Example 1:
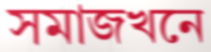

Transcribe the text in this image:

সমাজখনে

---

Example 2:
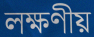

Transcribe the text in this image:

লক্ষণীয়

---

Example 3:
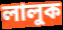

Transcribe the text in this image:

লালুক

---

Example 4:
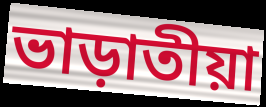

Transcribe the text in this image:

ভাড়াতীয়া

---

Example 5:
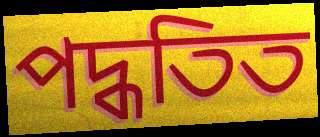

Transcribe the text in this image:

পদ্ধতিত